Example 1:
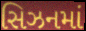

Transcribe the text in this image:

સિઝનમાં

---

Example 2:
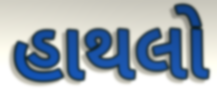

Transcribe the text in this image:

હાથલો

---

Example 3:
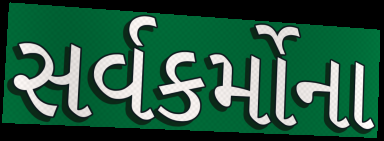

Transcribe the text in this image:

સર્વકર્મોના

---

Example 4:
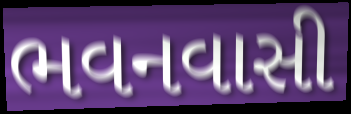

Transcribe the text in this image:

ભવનવાસી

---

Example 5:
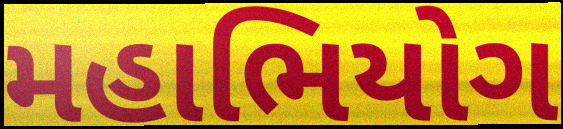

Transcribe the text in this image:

મહાભિયોગ